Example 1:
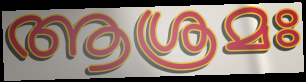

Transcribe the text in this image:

ആശ്രമഃ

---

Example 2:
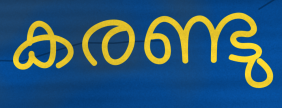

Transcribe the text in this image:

കരണ്ടു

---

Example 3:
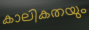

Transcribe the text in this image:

കാലികതയും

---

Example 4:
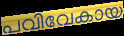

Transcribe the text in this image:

പവിവേകായ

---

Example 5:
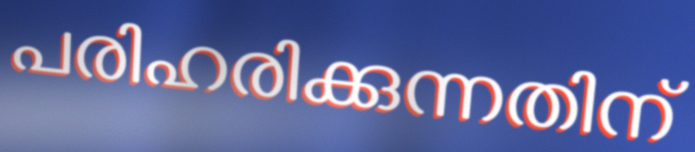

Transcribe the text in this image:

പരിഹരിക്കുന്നതിന്